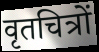
वृतचित्रों